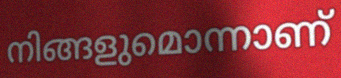
നിങ്ങളുമൊന്നാണ്